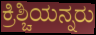
ಕ್ರಿಶ್ಚಿಯನ್ನರು